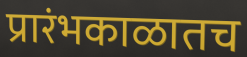
प्रारंभकाळातच